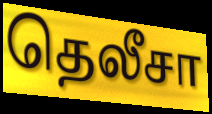
தெலீசா